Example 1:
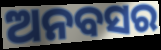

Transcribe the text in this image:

ଅନବସର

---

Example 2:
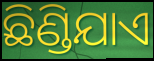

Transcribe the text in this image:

ଛିଣ୍ଡିଯାଏ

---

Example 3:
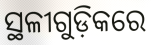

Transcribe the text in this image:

ସ୍ଥଳୀଗୁଡ଼ିକରେ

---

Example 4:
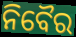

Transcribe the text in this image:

ନିବୈର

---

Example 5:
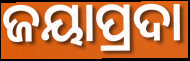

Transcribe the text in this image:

ଜୟାପ୍ରଦା